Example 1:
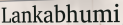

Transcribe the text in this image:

Lankabhumi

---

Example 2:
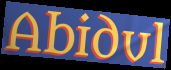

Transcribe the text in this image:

Abidul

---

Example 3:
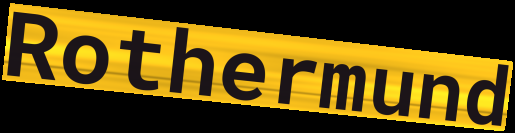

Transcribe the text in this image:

Rothermund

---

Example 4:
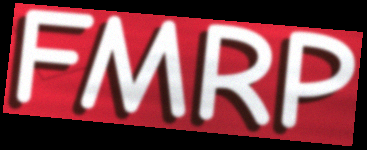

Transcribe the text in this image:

FMRP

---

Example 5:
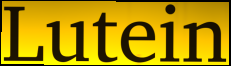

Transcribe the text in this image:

Lutein